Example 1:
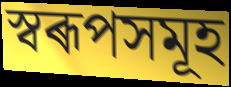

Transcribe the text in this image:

স্বৰূপসমূহ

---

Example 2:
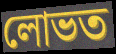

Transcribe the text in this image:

লোভত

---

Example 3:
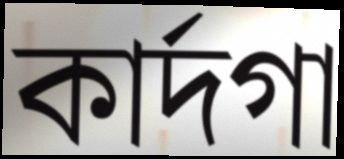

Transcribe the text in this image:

কাৰ্দগা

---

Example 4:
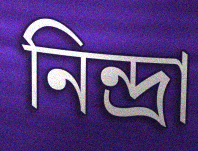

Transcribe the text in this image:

নিন্দ্ৰা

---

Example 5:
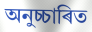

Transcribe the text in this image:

অনুচ্চাৰিত